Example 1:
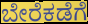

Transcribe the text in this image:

ಬೇರೆಕಡೆಗೆ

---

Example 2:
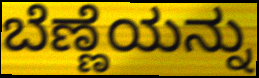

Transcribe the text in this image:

ಬೆಣ್ಣೆಯನ್ನು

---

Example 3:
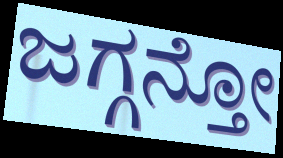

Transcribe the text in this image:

ಜಗ್ಗನ್ತೋ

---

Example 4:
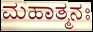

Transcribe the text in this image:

ಮಹಾತ್ಮನಃ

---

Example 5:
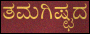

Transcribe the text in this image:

ತಮಗಿಷ್ಟದ